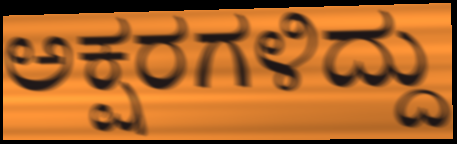
ಅಕ್ಷರಗಳಿದ್ದು